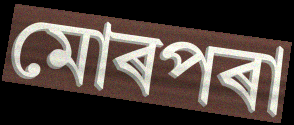
মোৰপৰা